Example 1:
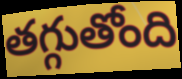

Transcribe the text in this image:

తగ్గుతోంది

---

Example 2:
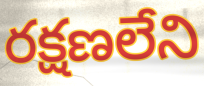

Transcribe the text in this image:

రక్షణలేని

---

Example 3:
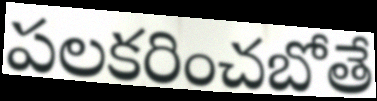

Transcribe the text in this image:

పలకరించబోతే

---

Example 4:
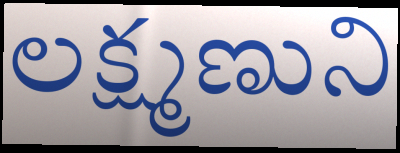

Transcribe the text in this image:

లక్ష్మణుని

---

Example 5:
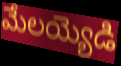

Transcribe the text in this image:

మేలయ్యెడి